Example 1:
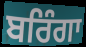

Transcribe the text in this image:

ਬਰਿੰਗਾ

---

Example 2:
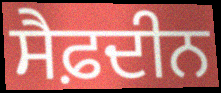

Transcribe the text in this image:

ਸੈਫ਼ਦੀਨ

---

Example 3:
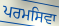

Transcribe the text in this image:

ਪਰਮਸਿਵਾ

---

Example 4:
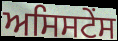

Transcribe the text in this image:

ਅਸਿਸਟੇਂਸ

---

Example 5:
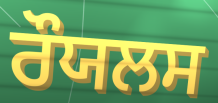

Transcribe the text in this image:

ਰੌਯਲਸ